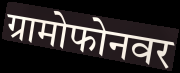
ग्रामोफोनवर